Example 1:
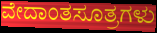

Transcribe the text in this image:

ವೇದಾಂತಸೂತ್ರಗಳು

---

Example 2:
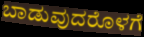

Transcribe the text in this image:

ಬಾಡುವುದರೊಳಗೆ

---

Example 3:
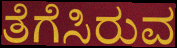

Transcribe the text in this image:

ತೆಗೆಸಿರುವ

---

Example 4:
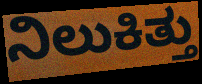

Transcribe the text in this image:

ನಿಲುಕಿತ್ತು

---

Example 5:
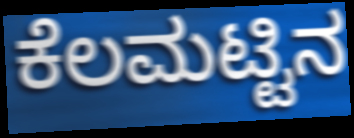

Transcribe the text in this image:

ಕೆಲಮಟ್ಟಿನ